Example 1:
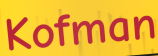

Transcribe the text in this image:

Kofman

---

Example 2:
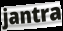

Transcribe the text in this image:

jantra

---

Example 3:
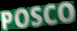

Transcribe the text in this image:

POSCO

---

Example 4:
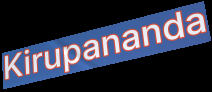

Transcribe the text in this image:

Kirupananda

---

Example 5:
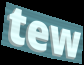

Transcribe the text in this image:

tew